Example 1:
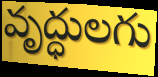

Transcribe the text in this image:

వృద్ధులగు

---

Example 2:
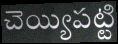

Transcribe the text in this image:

చెయ్యిపట్టి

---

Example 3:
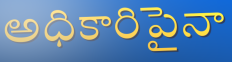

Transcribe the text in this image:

అధికారిపైనా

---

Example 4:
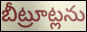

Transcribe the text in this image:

బీట్రూట్లను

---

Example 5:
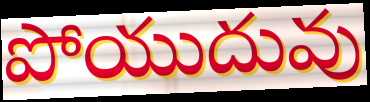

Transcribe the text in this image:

పోయుదువు